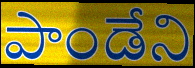
పాండేని